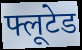
फ्लूटेड